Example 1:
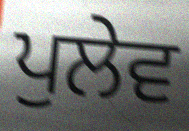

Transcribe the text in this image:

ਪੁਲੇਵ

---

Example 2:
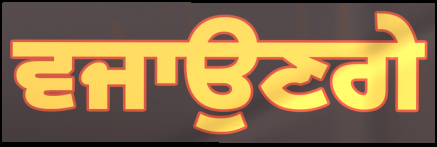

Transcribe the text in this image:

ਵਜਾਉਣਗੇ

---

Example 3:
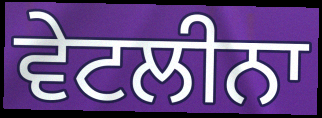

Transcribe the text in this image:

ਵੇਟਲੀਨਾ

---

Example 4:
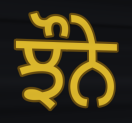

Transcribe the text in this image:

ਝੌਨੇ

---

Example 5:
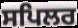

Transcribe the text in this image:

ਸਪਿਲਰ